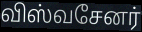
விஸ்வசேனர்